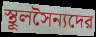
স্থূলসৈন্যদের